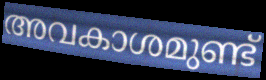
അവകാശമുണ്ട്